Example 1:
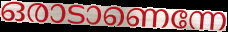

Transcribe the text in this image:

ഒരാടാണെന്നേ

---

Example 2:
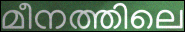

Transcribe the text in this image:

മീനത്തിലെ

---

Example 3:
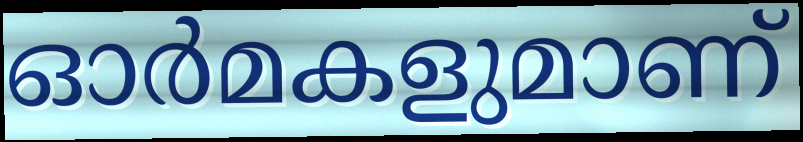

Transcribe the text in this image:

ഓർമകളുമാണ്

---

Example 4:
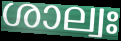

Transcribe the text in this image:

ശാല്വഃ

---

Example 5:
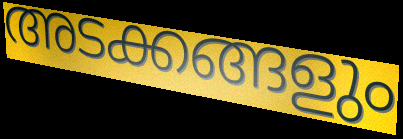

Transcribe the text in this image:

അടക്കങ്ങളും